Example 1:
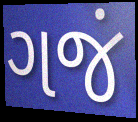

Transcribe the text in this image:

ગજં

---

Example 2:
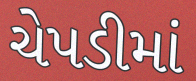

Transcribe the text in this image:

ચેપડીમાં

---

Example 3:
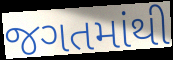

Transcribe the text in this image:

જગતમાંથી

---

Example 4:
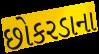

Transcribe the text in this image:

છોકરડાના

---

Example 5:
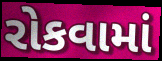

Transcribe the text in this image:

રોકવામાં